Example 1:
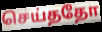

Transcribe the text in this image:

செய்ததோ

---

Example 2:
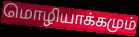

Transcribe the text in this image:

மொழியாக்கமும்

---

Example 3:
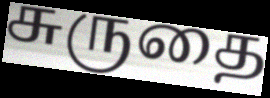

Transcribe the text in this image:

சுருதை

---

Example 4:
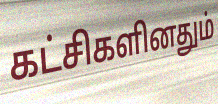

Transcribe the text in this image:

கட்சிகளினதும்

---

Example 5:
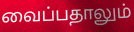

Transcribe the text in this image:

வைப்பதாலும்